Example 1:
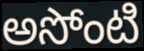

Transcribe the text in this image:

అసోంటి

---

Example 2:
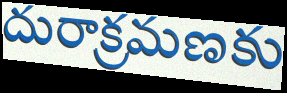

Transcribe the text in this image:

దురాక్రమణకు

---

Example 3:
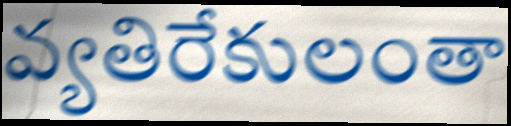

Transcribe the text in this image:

వ్యతిరేకులంతా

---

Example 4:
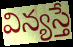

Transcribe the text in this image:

విన్యస్తే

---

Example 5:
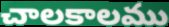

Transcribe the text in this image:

చాలకాలము